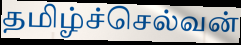
தமிழ்ச்செல்வன்